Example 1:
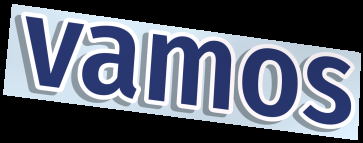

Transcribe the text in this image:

vamos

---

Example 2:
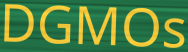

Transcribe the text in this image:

DGMOs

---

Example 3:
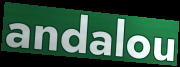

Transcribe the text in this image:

andalou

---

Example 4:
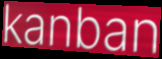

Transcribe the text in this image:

kanban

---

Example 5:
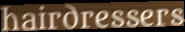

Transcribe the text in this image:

hairdressers